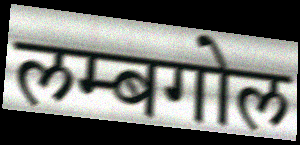
लम्बगोल